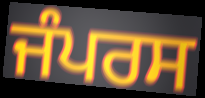
ਜੰਪਰਸ